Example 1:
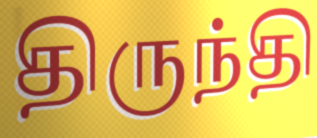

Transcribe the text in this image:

திருந்தி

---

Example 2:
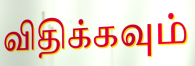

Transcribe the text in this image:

விதிக்கவும்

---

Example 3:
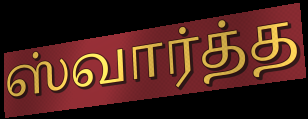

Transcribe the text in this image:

ஸ்வார்த்த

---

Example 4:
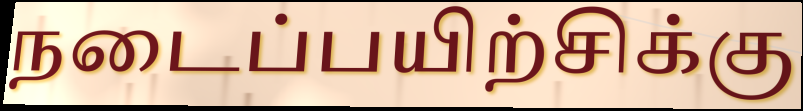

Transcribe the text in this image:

நடைப்பயிற்சிக்கு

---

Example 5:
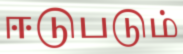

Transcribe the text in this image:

ஈடுபடும்